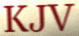
KJV